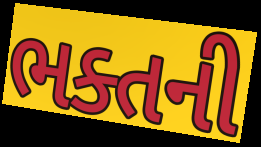
ભક્તની